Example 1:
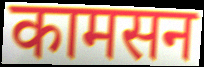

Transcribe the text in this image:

कामसन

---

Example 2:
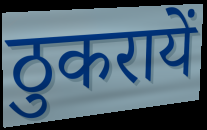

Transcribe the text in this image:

ठुकरायें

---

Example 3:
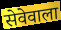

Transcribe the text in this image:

सेवेवाला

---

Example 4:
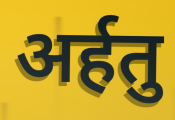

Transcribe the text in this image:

अर्हतु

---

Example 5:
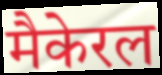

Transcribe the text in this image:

मैकेरल